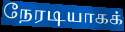
நேரடியாகக்